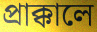
প্রাক্কালে